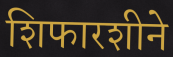
शिफारशीने